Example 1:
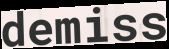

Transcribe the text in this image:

demiss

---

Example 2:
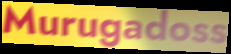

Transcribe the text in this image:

Murugadoss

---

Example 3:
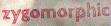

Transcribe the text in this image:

zygomorphic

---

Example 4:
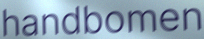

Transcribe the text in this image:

handbomen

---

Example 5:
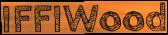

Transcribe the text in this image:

IFFIWood